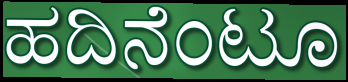
ಹದಿನೆಂಟೂ